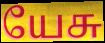
யேசு